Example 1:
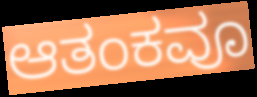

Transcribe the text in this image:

ಆತಂಕವೂ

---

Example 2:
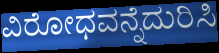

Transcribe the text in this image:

ವಿರೋಧವನ್ನೆದುರಿಸಿ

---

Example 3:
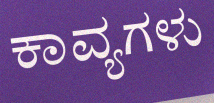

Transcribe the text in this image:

ಕಾವ್ಯಗಳು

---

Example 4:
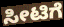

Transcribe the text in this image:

ಸೀಟಿಗೆ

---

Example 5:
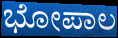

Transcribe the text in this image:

ಭೋಪಾಲ